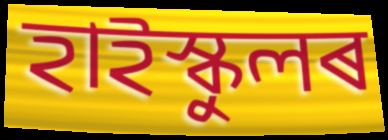
হাইস্কুলৰ